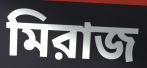
মিরাজ